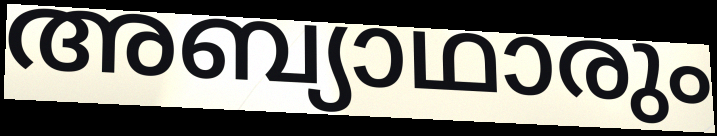
അബ്യാഥാരും